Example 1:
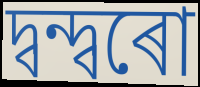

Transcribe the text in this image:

দ্বন্দ্বৰো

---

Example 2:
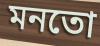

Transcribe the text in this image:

মনতো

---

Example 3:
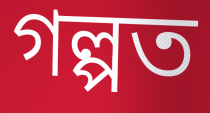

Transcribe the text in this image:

গল্পত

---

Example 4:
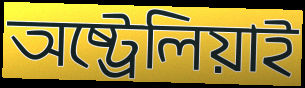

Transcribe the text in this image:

অষ্ট্ৰেলিয়াই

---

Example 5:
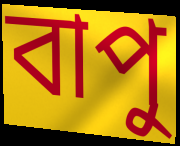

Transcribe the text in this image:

বাপু